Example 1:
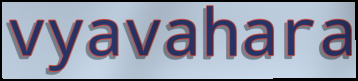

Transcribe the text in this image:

vyavahara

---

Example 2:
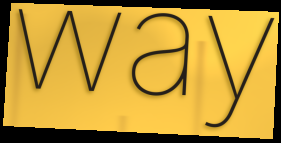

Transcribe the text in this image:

way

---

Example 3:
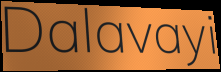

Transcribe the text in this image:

Dalavayi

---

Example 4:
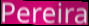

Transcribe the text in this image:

Pereira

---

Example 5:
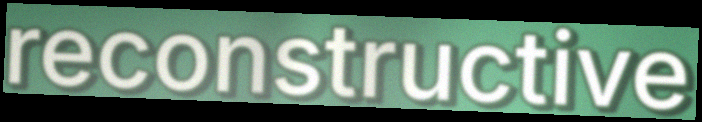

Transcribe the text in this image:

reconstructive